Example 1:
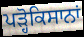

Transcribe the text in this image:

ਪੜ੍ਹੋਕਿਸਾਨਾਂ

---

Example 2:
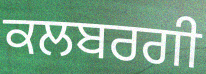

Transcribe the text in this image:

ਕਲਬਰਗੀ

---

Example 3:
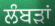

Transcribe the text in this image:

ਲੰਬੜਾਂ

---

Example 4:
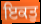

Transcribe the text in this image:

ਇਕਤੁ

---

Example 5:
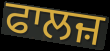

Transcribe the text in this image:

ਫਾਲਜ਼